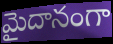
మైదానంగా